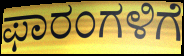
ಫಾರಂಗಳಿಗೆ